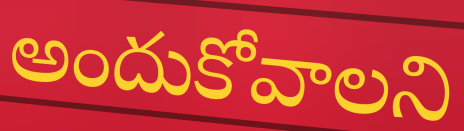
అందుకోవాలని